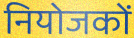
नियोजकों